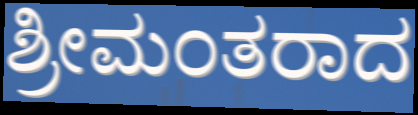
ಶ್ರೀಮಂತರಾದ